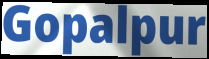
Gopalpur